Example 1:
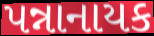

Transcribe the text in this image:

પન્નાનાયક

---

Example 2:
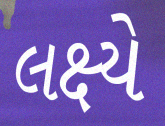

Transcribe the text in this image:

લક્ષ્યે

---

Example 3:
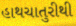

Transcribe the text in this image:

હાથચાતુરીથી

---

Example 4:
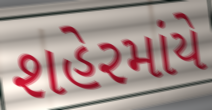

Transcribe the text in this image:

શહેરમાંયે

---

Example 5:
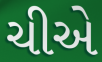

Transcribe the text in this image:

ચીએ